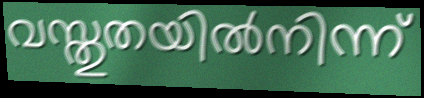
വസ്തുതയിൽനിന്ന്